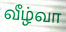
வீழ்வா